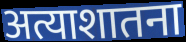
अत्याशातना